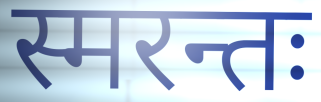
स्मरन्तः